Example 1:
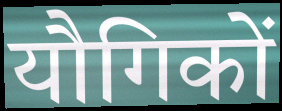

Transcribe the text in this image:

यौगिकों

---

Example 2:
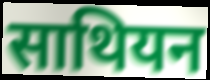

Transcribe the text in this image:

साथियन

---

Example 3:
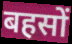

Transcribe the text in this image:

बहसों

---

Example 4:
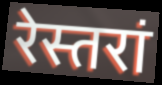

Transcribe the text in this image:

रेस्तरां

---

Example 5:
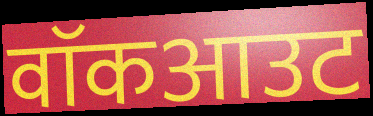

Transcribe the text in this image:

वॉकआउट